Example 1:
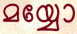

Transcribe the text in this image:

മയ്യോ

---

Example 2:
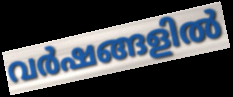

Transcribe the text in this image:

വർഷങ്ങളിൽ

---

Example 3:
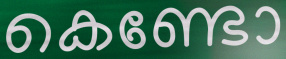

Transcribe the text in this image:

കെണ്ടോ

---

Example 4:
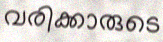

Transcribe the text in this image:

വരിക്കാരുടെ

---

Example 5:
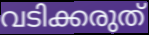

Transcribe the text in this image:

വടിക്കരുത്